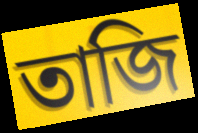
তাজি